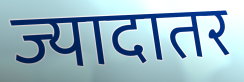
ज्‍यादातर